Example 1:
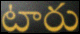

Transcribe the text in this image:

టారు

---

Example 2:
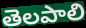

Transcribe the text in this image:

తెలపాలి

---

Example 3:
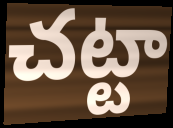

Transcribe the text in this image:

చట్టా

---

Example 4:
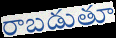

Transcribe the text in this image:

రాబడుతూ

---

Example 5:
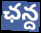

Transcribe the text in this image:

ఛన్ద